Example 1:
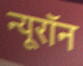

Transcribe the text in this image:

न्यूरॉन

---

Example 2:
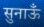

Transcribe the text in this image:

सुनाऊँ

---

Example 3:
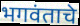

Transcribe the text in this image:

भगवंताचे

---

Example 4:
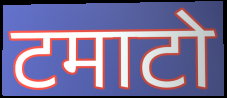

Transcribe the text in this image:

टमाटो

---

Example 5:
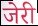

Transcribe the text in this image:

जेरी